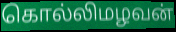
கொல்லிமழவன்